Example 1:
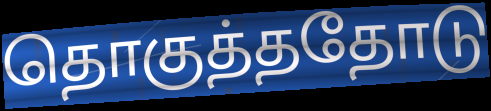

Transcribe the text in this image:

தொகுத்ததோடு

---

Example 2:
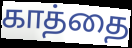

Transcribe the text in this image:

காத்தை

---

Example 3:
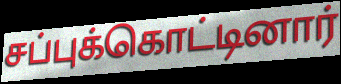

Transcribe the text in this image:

சப்புக்கொட்டினார்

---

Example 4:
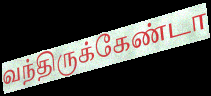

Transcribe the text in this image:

வந்திருக்கேண்டா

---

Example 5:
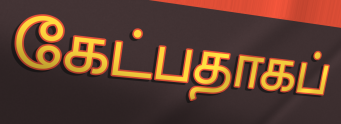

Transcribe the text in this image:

கேட்பதாகப்